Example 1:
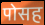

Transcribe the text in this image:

पोसह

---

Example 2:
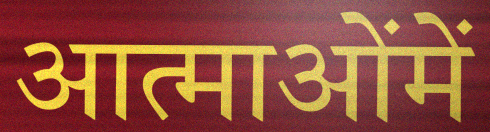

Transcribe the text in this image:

आत्माओंमें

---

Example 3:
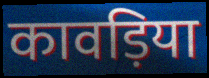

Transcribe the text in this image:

कावड़िया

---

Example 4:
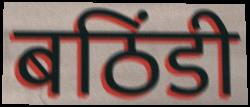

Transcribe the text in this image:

बठिंडी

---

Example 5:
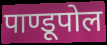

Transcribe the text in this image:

पाण्डूपोल